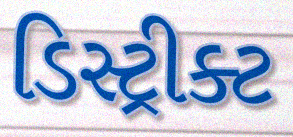
ડિસ્ટ્રીક્ટ